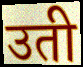
उती